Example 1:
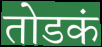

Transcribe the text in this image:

तोडकं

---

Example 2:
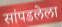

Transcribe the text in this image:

सांपडलेला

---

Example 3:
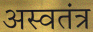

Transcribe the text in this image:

अस्वतंत्र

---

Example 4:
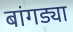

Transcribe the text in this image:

बांगड्या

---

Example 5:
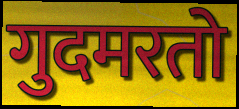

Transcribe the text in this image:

गुदमरतो